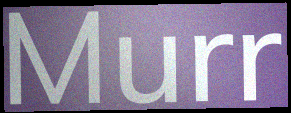
Murr